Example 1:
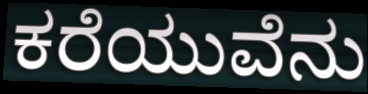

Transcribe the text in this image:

ಕರೆಯುವೆನು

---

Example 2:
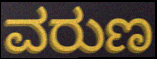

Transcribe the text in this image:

ವರುಣ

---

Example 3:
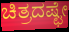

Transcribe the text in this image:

ಚಿತ್ರದಷ್ಟೇ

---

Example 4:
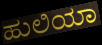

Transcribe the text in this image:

ಹುಲಿಯಾ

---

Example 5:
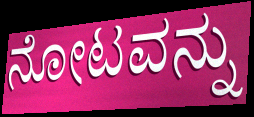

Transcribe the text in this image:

ನೋಟವನ್ನು